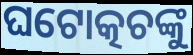
ଘଟୋତ୍କଚଙ୍କୁ